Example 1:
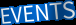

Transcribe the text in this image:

EVENTS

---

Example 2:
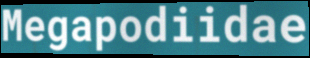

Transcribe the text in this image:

Megapodiidae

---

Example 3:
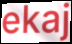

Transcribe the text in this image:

ekaj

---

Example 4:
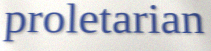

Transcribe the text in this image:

proletarian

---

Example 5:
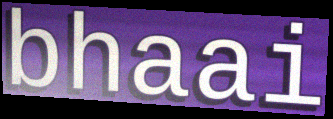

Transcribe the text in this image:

bhaai